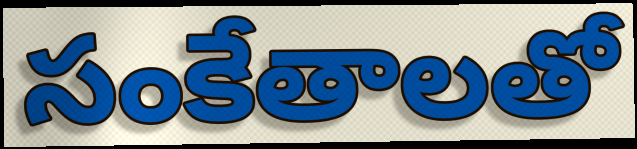
సంకేతాలతో